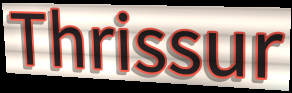
Thrissur